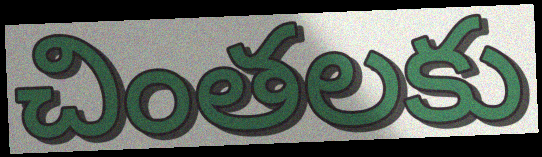
చింతలకు